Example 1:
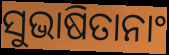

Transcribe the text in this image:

ସୁଭାଷିତାନାଂ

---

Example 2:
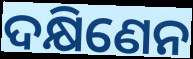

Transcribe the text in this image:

ଦକ୍ଷିଣେନ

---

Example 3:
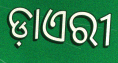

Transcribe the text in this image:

ଡ଼ାଏରୀ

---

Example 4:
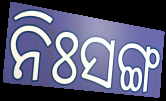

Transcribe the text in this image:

ନିଃସଙ୍ଗ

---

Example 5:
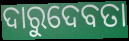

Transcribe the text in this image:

ଦାରୁଦେବତା